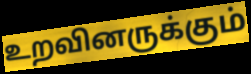
உறவினருக்கும்